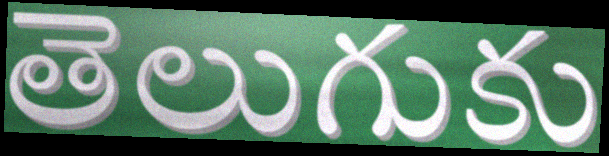
తెలుగుకు